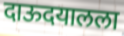
दाऊदयालला